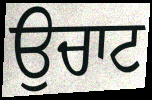
ਉਚਾਟ